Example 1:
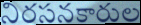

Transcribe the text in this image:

నిరసనకారుల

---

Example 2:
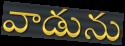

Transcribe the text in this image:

వాడును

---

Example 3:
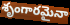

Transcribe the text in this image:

శృంగారమైనా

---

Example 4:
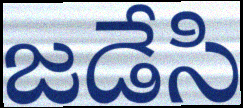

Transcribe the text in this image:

జడేసి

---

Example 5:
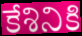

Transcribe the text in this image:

కేశినికి